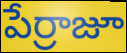
పేర్రాజూ